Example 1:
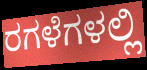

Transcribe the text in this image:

ರಗಳೆಗಳಲ್ಲಿ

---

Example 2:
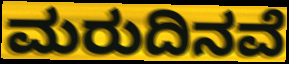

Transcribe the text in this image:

ಮರುದಿನವೆ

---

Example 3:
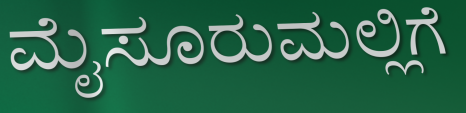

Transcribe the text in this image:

ಮೈಸೂರುಮಲ್ಲಿಗೆ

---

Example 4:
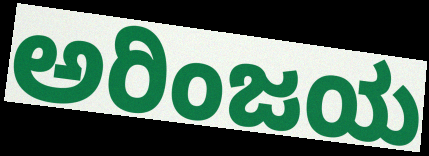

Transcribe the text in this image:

ಅರಿಂಜಯ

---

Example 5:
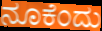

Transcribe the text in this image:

ನೂಕೆಂದು